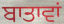
ਬਾਤਾਵਾਂ